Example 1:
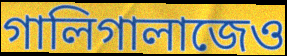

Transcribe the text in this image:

গালিগালাজেও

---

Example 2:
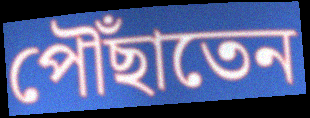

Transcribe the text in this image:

পৌঁছাতেন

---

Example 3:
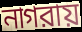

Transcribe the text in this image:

নাগরায়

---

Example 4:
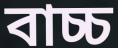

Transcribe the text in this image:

বাচ্চ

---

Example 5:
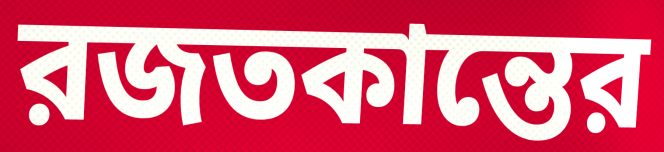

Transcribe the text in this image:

রজতকান্তের